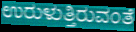
ಉರುಳುತ್ತಿರುವಂತೆ